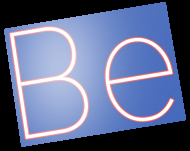
Be